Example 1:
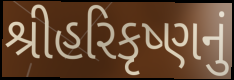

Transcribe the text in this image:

શ્રીહરિકૃષ્ણનું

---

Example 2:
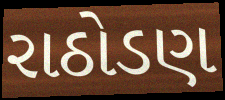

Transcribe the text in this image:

રાઠોડણ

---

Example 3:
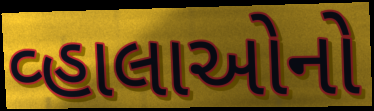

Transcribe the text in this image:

વ્હાલાઓનો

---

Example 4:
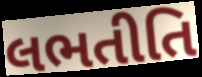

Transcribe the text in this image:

લભતીતિ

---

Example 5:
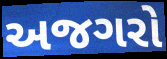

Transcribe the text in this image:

અજગરો